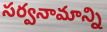
సర్వనామాన్ని